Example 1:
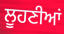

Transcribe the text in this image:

ਲੂਹਣੀਆਂ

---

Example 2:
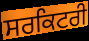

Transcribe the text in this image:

ਸਰਕਿਟਰੀ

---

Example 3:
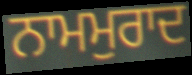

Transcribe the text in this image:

ਨਾਮਮੁਰਾਦ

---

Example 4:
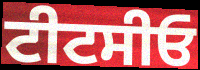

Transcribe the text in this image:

ਟੀਟਸੀਓ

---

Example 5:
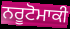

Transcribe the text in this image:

ਨਰੂਟੋਮਾਕੀ